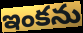
ఇంకను